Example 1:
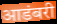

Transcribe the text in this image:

आडंबरी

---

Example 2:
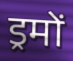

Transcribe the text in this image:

ड्रमों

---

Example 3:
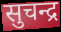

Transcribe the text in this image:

सुचन्द्र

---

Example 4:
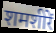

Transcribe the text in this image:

शमशीरें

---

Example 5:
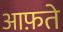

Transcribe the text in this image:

आफ़ते